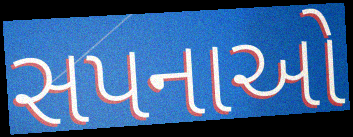
સપનાઓ